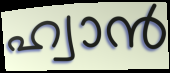
ഹ്വാൻ